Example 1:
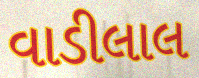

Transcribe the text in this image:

વાડીલાલ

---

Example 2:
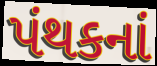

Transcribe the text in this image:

પંથકનાં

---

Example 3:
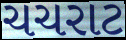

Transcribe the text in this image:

ચચરાટ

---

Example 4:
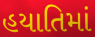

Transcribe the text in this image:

હયાતિમાં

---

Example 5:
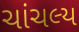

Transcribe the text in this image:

ચાંચલ્ય